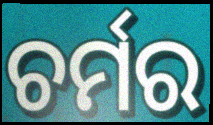
ଚର୍ମର